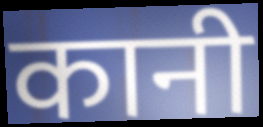
कानी